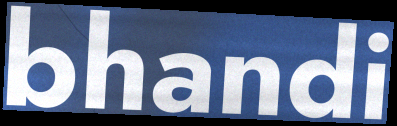
bhandi